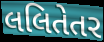
લલિતેતર